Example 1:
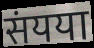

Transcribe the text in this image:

संयया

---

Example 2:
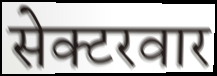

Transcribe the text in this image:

सेक्टरवार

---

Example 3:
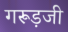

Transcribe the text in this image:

गरूड़जी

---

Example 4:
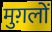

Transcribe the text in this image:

मुग़लों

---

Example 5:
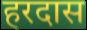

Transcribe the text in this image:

हरदास